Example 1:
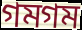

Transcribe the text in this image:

গমগম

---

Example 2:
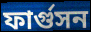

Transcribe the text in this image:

ফার্গুসন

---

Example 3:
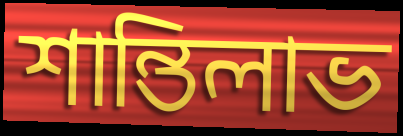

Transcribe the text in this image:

শান্তিলাভ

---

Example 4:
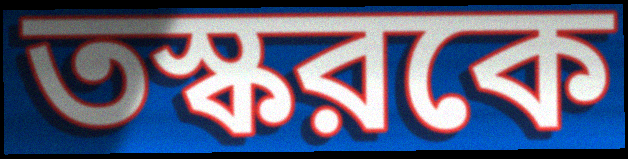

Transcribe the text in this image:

তস্করকে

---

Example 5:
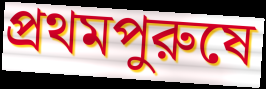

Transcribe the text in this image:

প্রথমপুরুষে